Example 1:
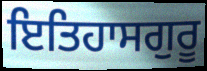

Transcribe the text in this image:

ਇਤਿਹਾਸਗੁਰੂ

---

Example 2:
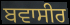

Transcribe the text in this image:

ਬਵਾਸੀਰ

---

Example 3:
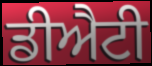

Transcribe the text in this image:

ਡੀਐਟੀ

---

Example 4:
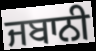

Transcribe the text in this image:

ਜਬਾਨੀ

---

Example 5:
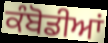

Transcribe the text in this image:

ਕੰਬੋਡੀਆਂ